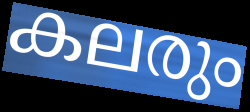
കലരും